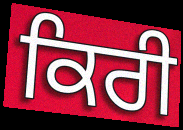
ਕਿਰੀ